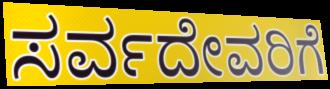
ಸರ್ವದೇವರಿಗೆ